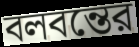
বলবন্তের